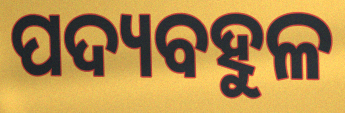
ପଦ୍ୟବହୁଳ